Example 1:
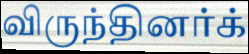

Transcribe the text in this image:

விருந்தினர்க்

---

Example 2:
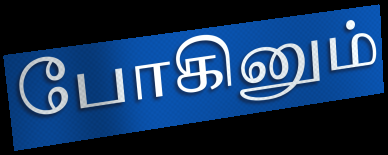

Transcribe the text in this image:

போகினும்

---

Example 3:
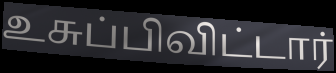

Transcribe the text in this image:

உசுப்பிவிட்டார்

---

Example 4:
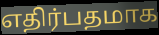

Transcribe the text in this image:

எதிர்பதமாக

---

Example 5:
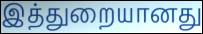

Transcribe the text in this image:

இத்துறையானது